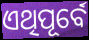
ଏଥିପୂର୍ବେ